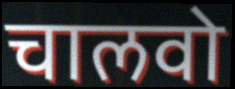
चालवो